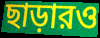
ছাড়ারও